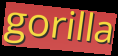
gorilla